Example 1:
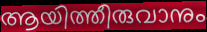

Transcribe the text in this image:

ആയിത്തീരുവാനും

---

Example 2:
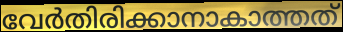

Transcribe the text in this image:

വേർതിരിക്കാനാകാത്തത്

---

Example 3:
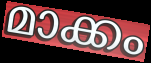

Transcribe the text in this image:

മാക്കം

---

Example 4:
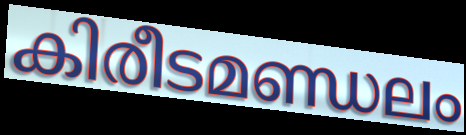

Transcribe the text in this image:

കിരീടമണ്ഡലം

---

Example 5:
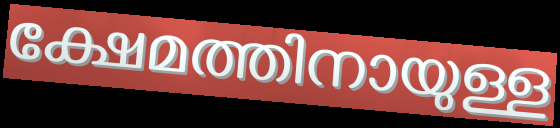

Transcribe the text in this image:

ക്ഷേമത്തിനായുള്ള